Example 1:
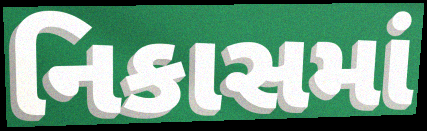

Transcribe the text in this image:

નિકાસમાં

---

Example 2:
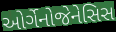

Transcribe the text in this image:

ઓર્ગેનોજેનેસિસ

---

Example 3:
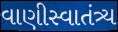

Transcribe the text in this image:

વાણીસ્વાતંત્ર્ય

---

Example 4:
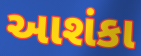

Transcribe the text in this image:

આશંકા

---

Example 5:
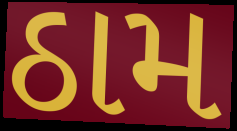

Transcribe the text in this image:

ઠામ